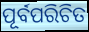
ପୂର୍ବପରିଚିତ